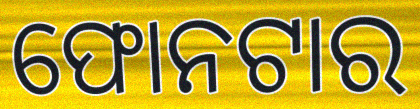
ଫୋନଟାର